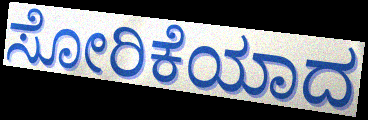
ಸೋರಿಕೆಯಾದ